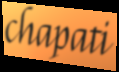
chapati